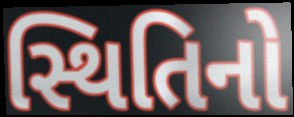
સ્થિતિનો